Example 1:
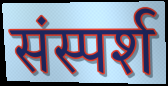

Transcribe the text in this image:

संस्पर्श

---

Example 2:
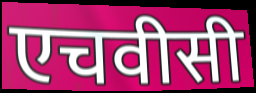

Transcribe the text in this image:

एचवीसी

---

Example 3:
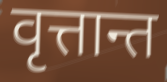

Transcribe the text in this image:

वृत्तान्त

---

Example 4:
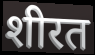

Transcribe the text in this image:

शीरत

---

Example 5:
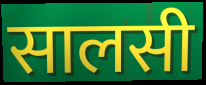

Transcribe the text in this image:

सालसी